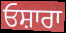
ਓਸ਼ਾਰਾ